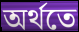
অৰ্থতে